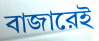
বাজারেই